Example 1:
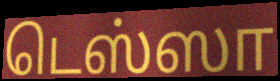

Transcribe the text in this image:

டெஸ்ஸா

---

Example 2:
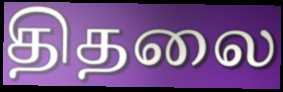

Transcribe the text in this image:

திதலை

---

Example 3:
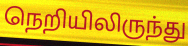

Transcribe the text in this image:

நெறியிலிருந்து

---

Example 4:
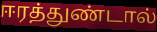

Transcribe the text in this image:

ஈரத்துண்டால்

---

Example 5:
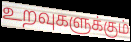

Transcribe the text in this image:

உறவுகளுக்கும்